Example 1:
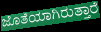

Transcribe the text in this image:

ಜೊತೆಯಾಗಿರುತ್ತಾರೆ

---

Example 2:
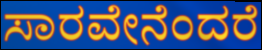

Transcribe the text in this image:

ಸಾರವೇನೆಂದರೆ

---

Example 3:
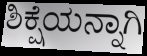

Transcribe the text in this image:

ಶಿಕ್ಷೆಯನ್ನಾಗಿ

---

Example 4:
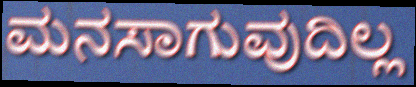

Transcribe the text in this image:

ಮನಸಾಗುವುದಿಲ್ಲ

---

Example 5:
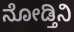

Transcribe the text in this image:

ನೋಡ್ತಿನಿ